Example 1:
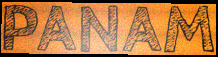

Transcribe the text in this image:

PANAM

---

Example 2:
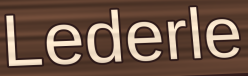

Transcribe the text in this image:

Lederle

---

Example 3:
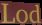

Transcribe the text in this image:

Lod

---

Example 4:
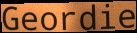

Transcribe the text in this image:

Geordie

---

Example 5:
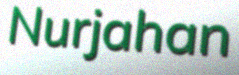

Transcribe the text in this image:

Nurjahan